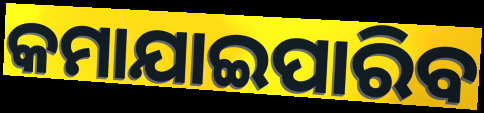
କମାଯାଇପାରିବ